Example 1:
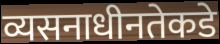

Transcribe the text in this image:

व्यसनाधीनतेकडे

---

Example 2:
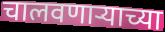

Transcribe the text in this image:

चालवणार्‍याच्या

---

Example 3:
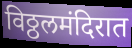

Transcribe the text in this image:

विठ्ठलमंदिरात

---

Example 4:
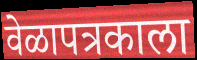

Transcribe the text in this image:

वेळापत्रकाला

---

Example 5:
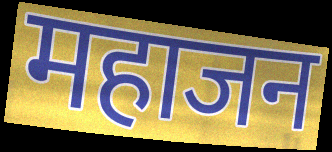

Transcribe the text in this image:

महाजन